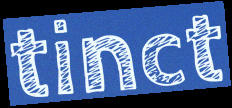
tinct